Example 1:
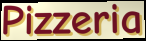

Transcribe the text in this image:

Pizzeria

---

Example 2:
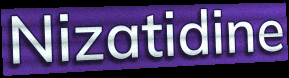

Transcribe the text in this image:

Nizatidine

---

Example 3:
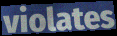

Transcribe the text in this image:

violates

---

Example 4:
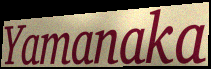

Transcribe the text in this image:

Yamanaka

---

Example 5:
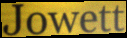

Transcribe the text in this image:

Jowett